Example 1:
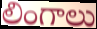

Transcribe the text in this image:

లింగాలు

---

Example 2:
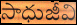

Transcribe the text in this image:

సాధుజీవి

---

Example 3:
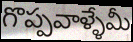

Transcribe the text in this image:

గొప్పవాళ్ళేమీ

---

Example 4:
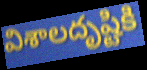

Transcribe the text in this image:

విశాలదృష్టికి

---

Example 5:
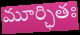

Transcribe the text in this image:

మూర్ఛితః